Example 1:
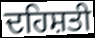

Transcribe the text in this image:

ਦਹਿਸ਼ਤੀ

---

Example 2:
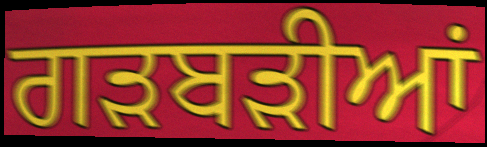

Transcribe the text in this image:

ਗੜਬੜੀਆਂ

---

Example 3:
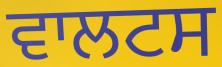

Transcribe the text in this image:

ਵਾਲਟਸ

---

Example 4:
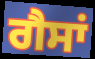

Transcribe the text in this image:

ਗੈਸਾਂ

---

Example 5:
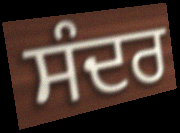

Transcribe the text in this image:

ਸੰਦਰ